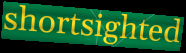
shortsighted